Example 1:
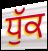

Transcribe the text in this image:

ਧੁੱਕ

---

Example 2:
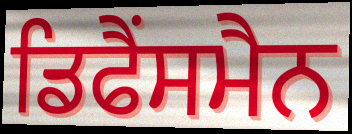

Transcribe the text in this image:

ਡਿਫੈਂਸਮੈਨ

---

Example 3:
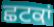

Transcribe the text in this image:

ਛਟਕਾਂ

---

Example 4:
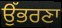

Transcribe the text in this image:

ਉੱਭਰਣਾ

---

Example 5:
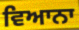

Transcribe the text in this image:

ਵਿਆਨਾ